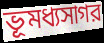
ভূমধ্যসাগর